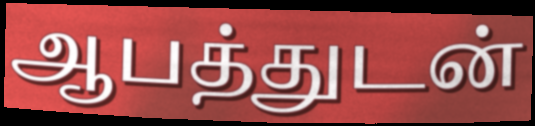
ஆபத்துடன்